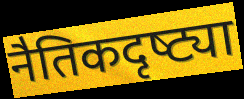
नैतिकदृष्ट्या